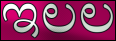
ಇಲಲ